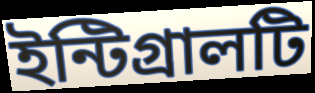
ইন্টিগ্রালটি